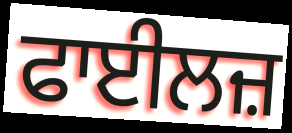
ਫਾਈਲਜ਼